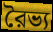
রৈভ্য